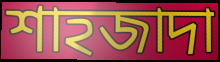
শাহজাদা